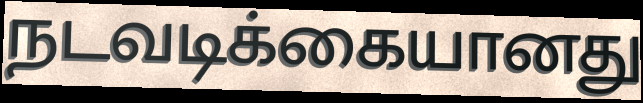
நடவடிக்கையானது